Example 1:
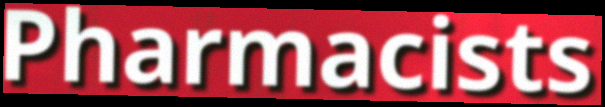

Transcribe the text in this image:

Pharmacists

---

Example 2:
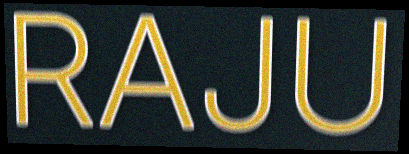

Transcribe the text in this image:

RAJU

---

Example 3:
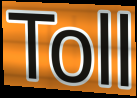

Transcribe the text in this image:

Toll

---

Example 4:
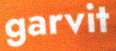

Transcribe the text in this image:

garvit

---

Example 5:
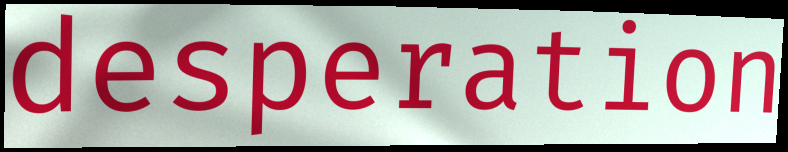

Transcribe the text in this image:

desperation